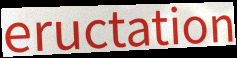
eructation